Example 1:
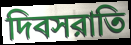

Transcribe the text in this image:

দিবসরাতি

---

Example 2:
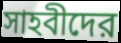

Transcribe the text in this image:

সাহবীদের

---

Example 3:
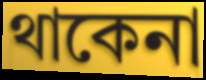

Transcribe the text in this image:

থাকেনা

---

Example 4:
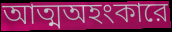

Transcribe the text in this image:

আত্মঅহংকারে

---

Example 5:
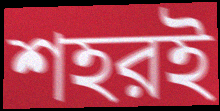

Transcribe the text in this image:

শহরই